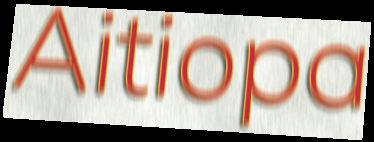
Aitiopa